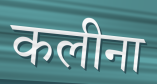
कलीना